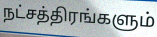
நட்சத்திரங்களும்